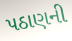
પઠાણની